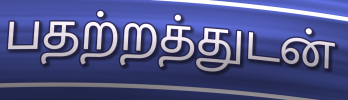
பதற்றத்துடன்